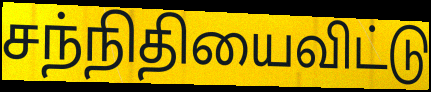
சந்நிதியைவிட்டு